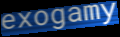
exogamy